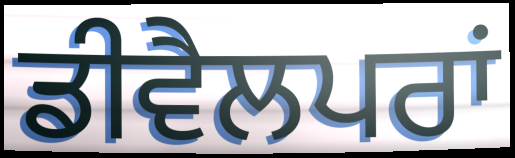
ਡੀਵੈਲਪਰਾਂ